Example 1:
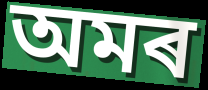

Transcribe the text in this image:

অমৰ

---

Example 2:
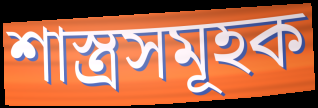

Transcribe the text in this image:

শাস্ত্ৰসমূহক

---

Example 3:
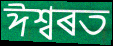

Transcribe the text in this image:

ঈশ্বৰত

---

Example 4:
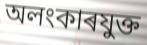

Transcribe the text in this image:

অলংকাৰযুক্ত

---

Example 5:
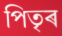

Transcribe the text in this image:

পিতৃৰ